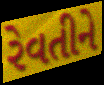
રેવતીને